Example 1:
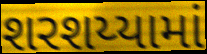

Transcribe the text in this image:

શરશય્યામાં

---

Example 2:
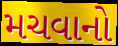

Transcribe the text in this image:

મચવાનો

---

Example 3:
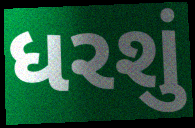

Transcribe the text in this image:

ધરશું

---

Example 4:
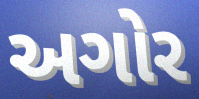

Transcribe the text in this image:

અગોર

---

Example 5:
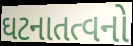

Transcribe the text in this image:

ઘટનાતત્વનો